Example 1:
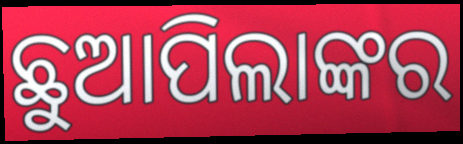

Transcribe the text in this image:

ଛୁଆପିଲାଙ୍କର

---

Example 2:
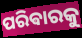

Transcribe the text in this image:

ପରିଵାରକୁ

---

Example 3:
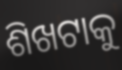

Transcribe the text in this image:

ଶିଖଟାକୁ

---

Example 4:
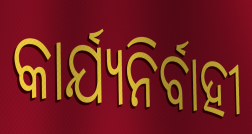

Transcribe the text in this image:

କାର୍ଯ୍ୟନିର୍ବାହୀ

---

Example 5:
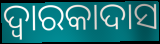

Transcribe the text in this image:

ଦ୍ୱାରକାଦାସ